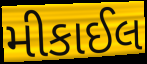
મીકાઈલ